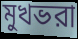
মুখভরা